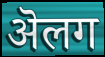
ऄलग